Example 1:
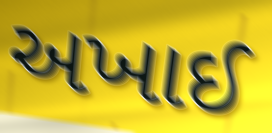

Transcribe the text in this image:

અખાઈ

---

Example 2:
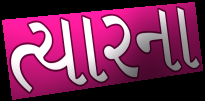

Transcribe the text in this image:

ત્યારના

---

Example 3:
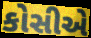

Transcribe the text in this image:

કોસીએ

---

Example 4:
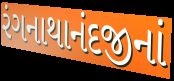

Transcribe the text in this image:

રંગનાથાનંદજીનાં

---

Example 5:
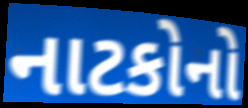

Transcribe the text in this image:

નાટકોનો